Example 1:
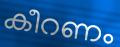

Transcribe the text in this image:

കീറണം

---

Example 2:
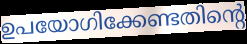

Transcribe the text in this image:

ഉപയോഗിക്കേണ്ടതിന്റെ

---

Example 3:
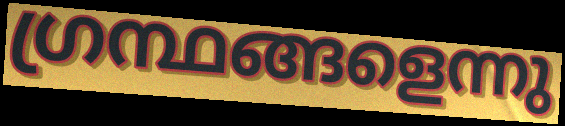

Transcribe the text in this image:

ഗ്രന്ഥങ്ങളെന്നു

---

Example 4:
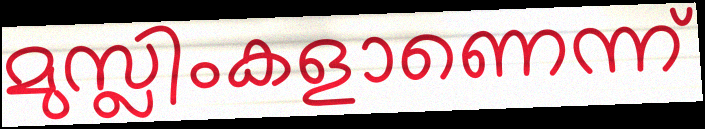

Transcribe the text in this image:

മുസ്ലിംകളാണെന്ന്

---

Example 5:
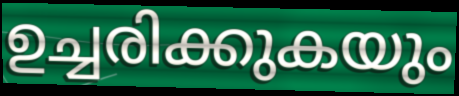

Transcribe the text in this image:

ഉച്ചരിക്കുകയും